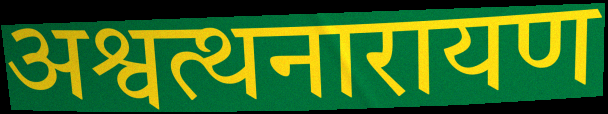
अश्वत्थनारायण